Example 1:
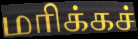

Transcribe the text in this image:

மரிக்கச்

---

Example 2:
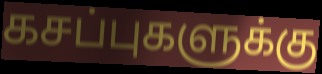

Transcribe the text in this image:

கசப்புகளுக்கு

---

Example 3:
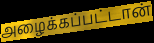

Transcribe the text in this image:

அழைக்கப்பட்டான்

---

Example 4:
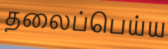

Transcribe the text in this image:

தலைப்பெய்ய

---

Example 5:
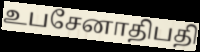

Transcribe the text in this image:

உபசேனாதிபதி